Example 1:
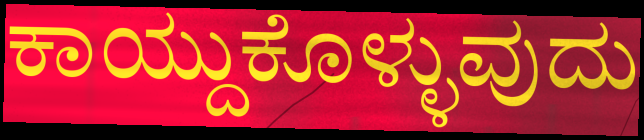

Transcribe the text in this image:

ಕಾಯ್ದುಕೊಳ್ಳುವುದು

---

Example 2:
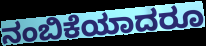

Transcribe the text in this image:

ನಂಬಿಕೆಯಾದರೂ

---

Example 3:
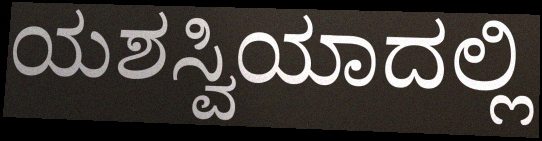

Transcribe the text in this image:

ಯಶಸ್ವಿಯಾದಲ್ಲಿ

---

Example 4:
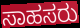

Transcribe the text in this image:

ಸಾಹಸರು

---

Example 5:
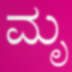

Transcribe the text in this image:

ಮೃ